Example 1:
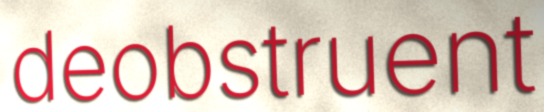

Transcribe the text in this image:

deobstruent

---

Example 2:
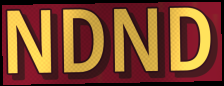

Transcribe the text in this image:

NDND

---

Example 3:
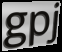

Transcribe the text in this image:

gpj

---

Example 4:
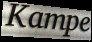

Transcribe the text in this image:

Kampe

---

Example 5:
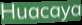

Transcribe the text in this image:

Huacaya